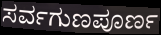
ಸರ್ವಗುಣಪೂರ್ಣ